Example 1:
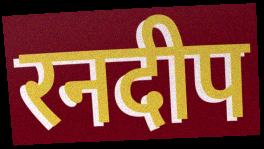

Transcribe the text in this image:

रनदीप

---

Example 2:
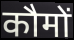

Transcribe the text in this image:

कौमों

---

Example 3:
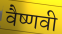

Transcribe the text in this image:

वैष्णवी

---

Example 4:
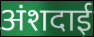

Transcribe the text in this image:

अंशदाई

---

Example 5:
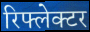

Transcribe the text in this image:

रिफ्लेक्टर